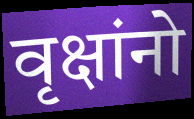
वृक्षांनो